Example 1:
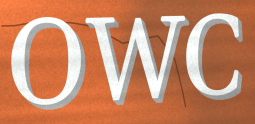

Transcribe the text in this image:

OWC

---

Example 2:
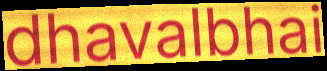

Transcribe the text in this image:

dhavalbhai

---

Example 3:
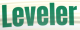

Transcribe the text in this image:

Leveler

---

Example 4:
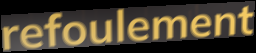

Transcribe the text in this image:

refoulement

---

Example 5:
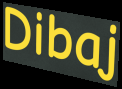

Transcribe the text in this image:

Dibaj